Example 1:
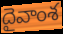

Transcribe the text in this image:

దైవాంశ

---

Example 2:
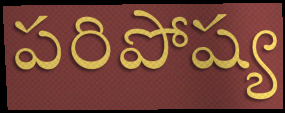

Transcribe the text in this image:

పరిపోష్య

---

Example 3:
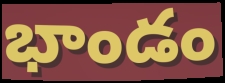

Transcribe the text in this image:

భాండం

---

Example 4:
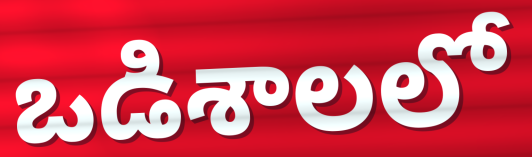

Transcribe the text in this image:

ఒడిశాలలో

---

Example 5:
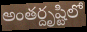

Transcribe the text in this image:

అంతర్దృష్టిలో